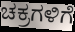
ಚಕ್ರಗಳಿಗೆ